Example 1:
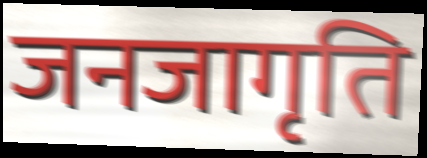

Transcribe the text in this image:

जनजागृति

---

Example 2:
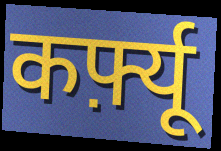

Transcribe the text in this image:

कर्फ़्यू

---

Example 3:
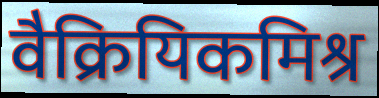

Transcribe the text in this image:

वैक्रियिकमिश्र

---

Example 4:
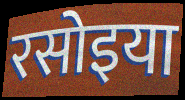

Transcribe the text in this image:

रसोइया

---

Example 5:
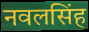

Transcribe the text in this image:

नवलसिंह